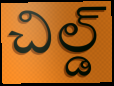
చిల్డ్